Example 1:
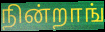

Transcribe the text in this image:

நின்றாங்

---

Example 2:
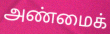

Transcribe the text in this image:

அண்மைக்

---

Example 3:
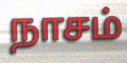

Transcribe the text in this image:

நாசம்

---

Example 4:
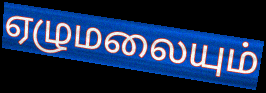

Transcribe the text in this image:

ஏழுமலையும்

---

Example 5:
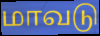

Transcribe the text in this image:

மாவடு